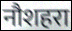
नौशहरा